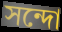
সন্দো